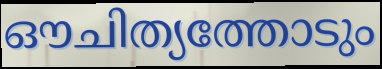
ഔചിത്യത്തോടും